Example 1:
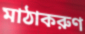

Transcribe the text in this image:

মাঠাকরুণ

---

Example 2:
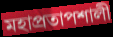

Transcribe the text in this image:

মহাপ্রতাপশালী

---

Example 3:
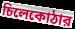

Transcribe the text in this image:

চিলেকোঠার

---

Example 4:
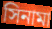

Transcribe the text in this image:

সিনামা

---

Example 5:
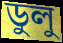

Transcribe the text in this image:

ডুলু